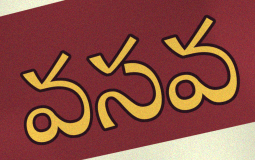
వసవ